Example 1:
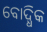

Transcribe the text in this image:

ବୋଦ୍ଧିକ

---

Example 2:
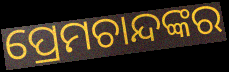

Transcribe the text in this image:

ପ୍ରେମଚାନ୍ଦଙ୍କର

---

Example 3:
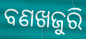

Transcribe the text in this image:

ବଣଖଜୁରି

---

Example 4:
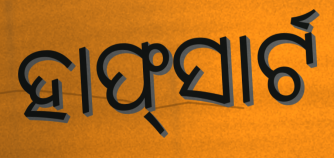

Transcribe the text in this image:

ହାଫ୍‍ସାର୍ଟ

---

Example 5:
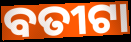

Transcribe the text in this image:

ବତୀଟା